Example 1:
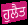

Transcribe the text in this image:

ਹੁਲੈਤ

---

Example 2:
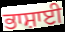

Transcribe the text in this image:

ਭਾਸ਼ਾਈ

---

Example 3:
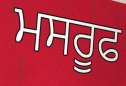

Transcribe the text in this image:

ਮਸਰੂਫ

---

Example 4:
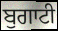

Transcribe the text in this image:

ਬੁਗਾਟੀ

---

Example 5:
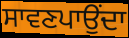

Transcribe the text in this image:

ਸਾਵਣਪਾਉਂਦਾ